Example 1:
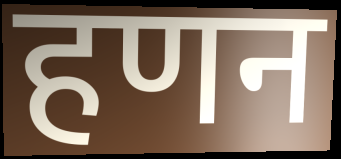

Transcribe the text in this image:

हणन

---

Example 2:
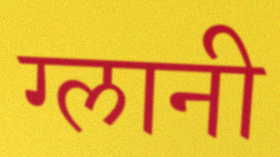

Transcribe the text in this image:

ग्लानी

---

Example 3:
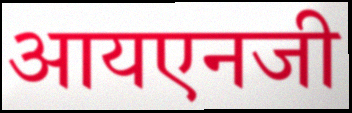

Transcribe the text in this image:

आयएनजी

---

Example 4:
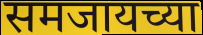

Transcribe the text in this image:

समजायच्या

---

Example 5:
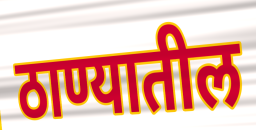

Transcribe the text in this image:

ठाण्यातील